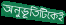
অনুভূতিটিকেই